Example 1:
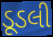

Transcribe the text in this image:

ડૂડલી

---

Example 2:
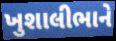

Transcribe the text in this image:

ખુશાલીભાને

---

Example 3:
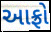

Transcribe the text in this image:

આફ્રો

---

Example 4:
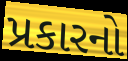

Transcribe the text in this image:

પ્રકારનો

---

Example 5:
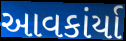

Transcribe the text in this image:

આવકાંર્યા